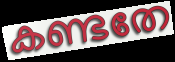
കണ്ടതേ